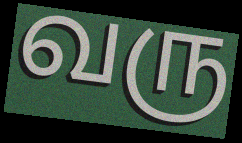
வரு